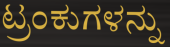
ಟ್ರಂಕುಗಳನ್ನು